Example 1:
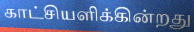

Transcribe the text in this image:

காட்சியளிக்கின்றது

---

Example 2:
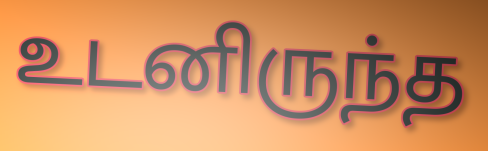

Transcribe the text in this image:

உடனிருந்த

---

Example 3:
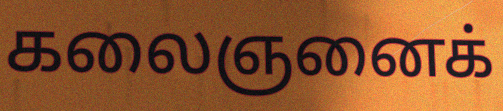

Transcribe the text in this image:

கலைஞனைக்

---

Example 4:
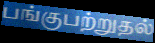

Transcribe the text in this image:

பங்குபற்றுதல்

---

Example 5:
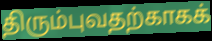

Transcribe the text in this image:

திரும்புவதற்காகக்